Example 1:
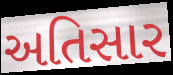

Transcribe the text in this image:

અતિસાર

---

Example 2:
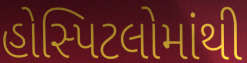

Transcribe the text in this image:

હોસ્પિટલોમાંથી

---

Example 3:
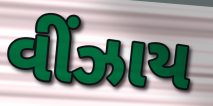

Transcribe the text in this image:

વીંઝાય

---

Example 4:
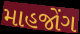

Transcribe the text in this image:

માહજોંગ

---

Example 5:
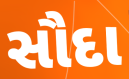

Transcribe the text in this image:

સૌદા